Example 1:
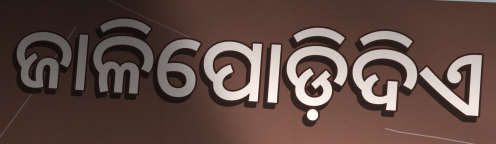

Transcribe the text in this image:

ଜାଳିପୋଡ଼ିଦିଏ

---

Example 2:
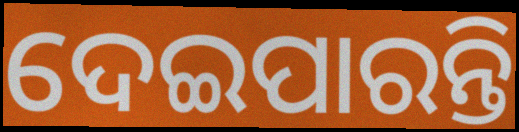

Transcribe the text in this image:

ଦେଇପାରନ୍ତି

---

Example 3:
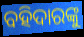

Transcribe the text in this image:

ବହିଦାରଙ୍କୁ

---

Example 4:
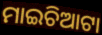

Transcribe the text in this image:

ମାଇଚିଆଟା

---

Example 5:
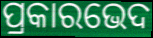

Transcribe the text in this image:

ପ୍ରକାରଭେଦ